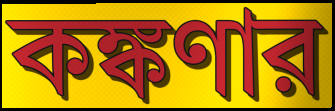
কঙ্কণার